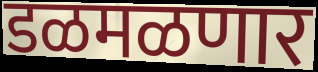
डळमळणार